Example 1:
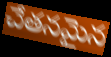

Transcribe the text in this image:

చేతనమైన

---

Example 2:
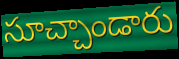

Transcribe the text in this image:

సూచ్చాండారు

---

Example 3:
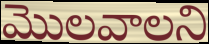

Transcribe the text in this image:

మొలవాలని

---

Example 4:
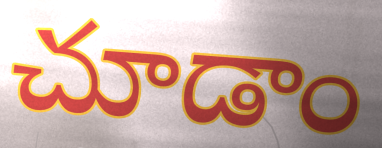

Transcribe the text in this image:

చూడాం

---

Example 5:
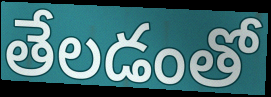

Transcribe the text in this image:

తేలడంతో